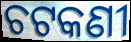
ଚଟକଣୀ